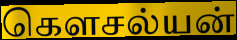
கௌசல்யன்